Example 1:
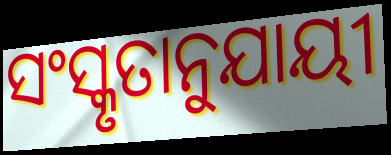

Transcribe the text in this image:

ସଂସ୍କୃତାନୁଯାୟୀ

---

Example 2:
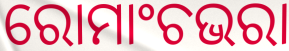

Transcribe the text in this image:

ରୋମାଂଚଭରା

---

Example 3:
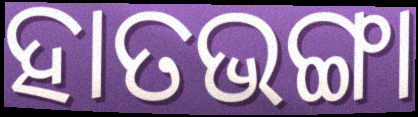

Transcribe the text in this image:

ହାତଭଙ୍ଗା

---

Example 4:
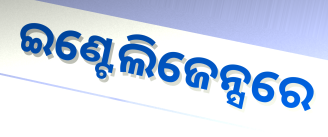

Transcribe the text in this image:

ଇଣ୍ଟେଲିଜେନ୍ସରେ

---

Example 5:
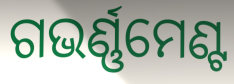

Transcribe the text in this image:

ଗଭର୍ଣ୍ଣମେଣ୍ଟ